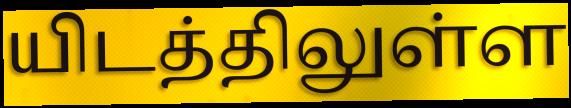
யிடத்திலுள்ள